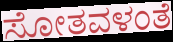
ಸೋತವಳಂತೆ